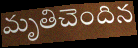
మృతిచెందిన